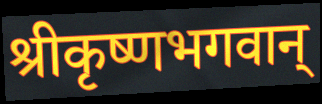
श्रीकृष्णभगवान्